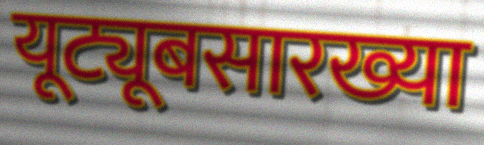
यूट्यूबसारख्या